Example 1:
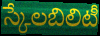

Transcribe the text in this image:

స్కేలబిలిటీ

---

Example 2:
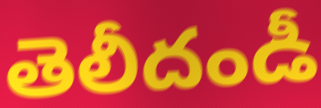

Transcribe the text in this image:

తెలీదండీ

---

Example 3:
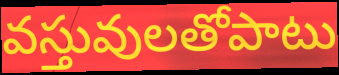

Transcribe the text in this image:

వస్తువులతోపాటు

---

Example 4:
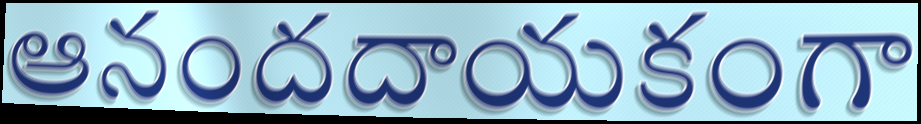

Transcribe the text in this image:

ఆనందదాయకంగా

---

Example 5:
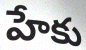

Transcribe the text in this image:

హేకు